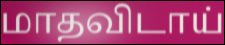
மாதவிடாய்